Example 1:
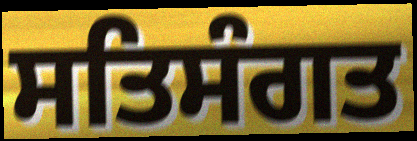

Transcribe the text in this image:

ਸਤਿਸੰਗਤ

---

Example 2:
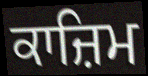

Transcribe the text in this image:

ਕਾਜ਼ਿਮ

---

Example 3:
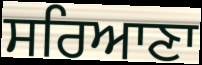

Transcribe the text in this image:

ਸਰਿਆਣਾ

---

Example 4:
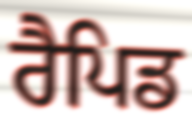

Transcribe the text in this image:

ਰੈਪਿਡ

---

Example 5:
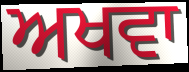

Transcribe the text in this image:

ਅਖਵਾ